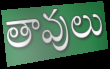
తావులు